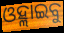
ଓହ୍ଲାଇବୁ